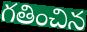
గతించిన